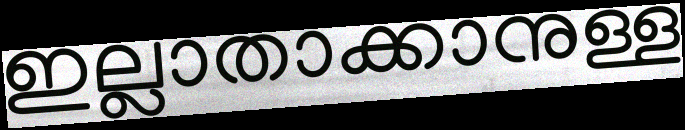
ഇല്ലാതാക്കാനുള്ള